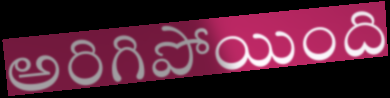
అరిగిపోయింది